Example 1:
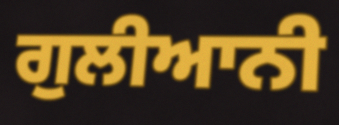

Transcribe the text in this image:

ਗੁਲੀਆਨੀ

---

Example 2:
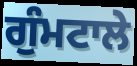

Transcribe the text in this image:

ਗੁੰਮਟਾਲੇ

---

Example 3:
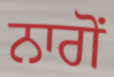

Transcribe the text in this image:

ਨਾਗੋਂ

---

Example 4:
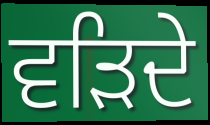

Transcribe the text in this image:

ਵੜਿਦੇ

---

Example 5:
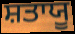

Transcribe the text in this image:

ਸ਼ਤਾਯੂ